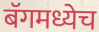
बॅगमध्येच